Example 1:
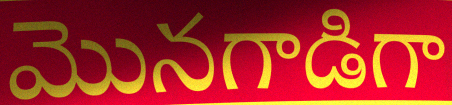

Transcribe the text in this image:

మొనగాడిగా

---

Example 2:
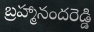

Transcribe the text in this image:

బ్రహ్మానందరెడ్డి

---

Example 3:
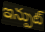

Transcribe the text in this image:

ఇన్పుట్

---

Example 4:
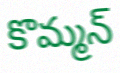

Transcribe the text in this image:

కొమ్మన్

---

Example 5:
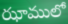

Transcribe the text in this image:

ఝాములో